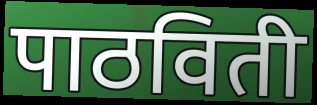
पाठविती